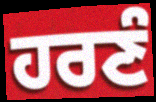
ਹਰਣੰ